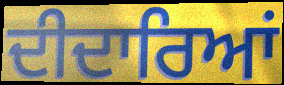
ਦੀਦਾਰਿਆਂ